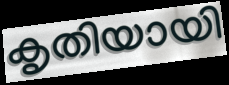
കൃതിയായി